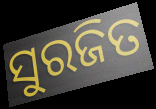
ସୁରଜିତ